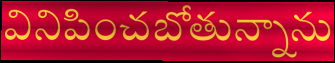
వినిపించబోతున్నాను